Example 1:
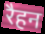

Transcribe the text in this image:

रैहन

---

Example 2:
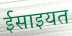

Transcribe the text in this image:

ईसाइयत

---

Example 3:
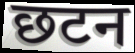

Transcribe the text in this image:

छटन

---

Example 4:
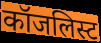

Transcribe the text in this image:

कॉजलिस्ट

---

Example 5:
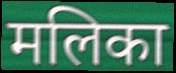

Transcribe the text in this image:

मलिका